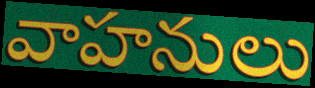
వాహనులు